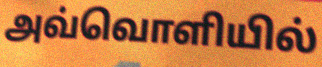
அவ்வொளியில்